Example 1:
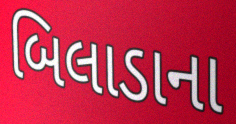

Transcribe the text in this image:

બિલાડાના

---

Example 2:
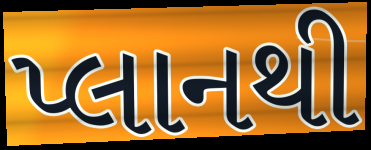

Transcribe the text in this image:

પ્લાનથી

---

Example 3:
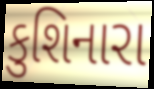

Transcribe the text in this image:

કુશિનારા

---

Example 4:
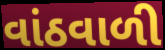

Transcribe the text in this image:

વાંઠવાળી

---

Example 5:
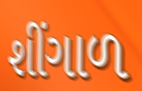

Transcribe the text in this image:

શીંગાળ